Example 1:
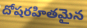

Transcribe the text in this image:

దోషరహితమైన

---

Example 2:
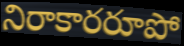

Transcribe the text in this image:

నిరాకారరూపో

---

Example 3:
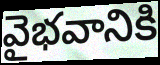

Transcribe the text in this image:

వైభవానికి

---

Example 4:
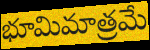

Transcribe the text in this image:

భూమిమాత్రమే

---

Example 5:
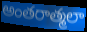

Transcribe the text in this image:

అంతరాత్మలా